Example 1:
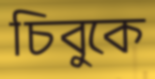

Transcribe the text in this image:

চিবুকে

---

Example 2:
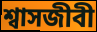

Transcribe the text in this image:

শ্বাসজীবী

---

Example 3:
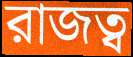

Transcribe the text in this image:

রাজত্ব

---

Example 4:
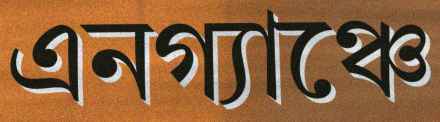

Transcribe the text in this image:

এনগ্যাঞ্চে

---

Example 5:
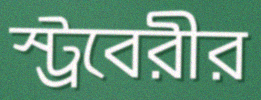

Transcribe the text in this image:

স্ট্রবেরীর